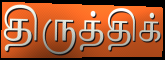
திருத்திக்